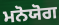
ਮਨੋਯੋਗ